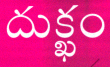
దుక్ఖం